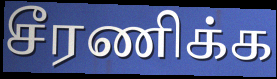
சீரணிக்க